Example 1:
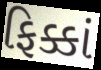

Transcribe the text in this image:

ફિક્કાં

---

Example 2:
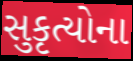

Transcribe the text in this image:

સુકૃત્યોના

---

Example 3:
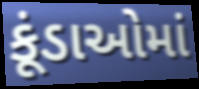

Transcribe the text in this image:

કૂંડાઓમાં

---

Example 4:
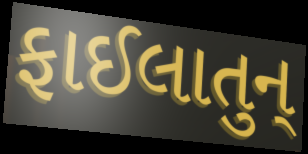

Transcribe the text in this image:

ફાઈલાતુન્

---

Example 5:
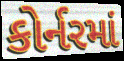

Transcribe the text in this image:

કોર્નરમાં